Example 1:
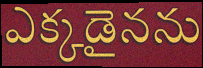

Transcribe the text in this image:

ఎక్కడైనను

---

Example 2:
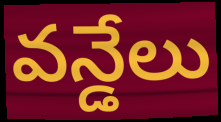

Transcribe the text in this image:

వన్డేలు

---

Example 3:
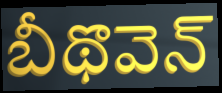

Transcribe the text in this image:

బీథొవెన్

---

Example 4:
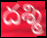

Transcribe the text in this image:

దశ్మి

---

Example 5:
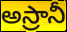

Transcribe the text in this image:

అస్రానీ